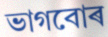
ভাগবোৰ